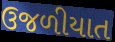
ઉજળીયાત